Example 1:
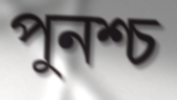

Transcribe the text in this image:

পুনশ্চ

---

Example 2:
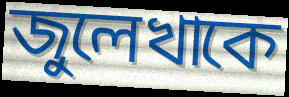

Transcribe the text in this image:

জুলেখাকে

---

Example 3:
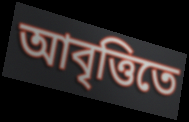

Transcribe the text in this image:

আবৃত্তিতে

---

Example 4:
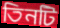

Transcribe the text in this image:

তিনটি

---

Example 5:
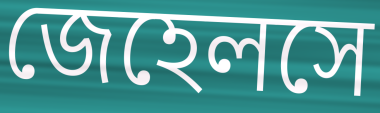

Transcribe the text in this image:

জেহেলসে